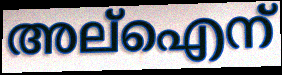
അല്ഐന്